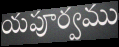
యపూర్వము